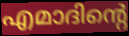
എമാദിന്റെ